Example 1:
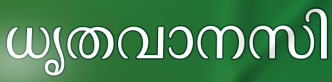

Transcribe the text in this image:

ധൃതവാനസി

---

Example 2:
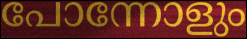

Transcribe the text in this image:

പോന്നോളും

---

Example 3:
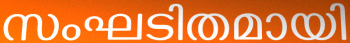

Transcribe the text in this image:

സംഘടിതമായി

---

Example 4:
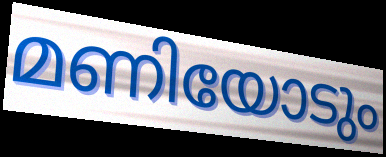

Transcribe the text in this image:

മണിയോടും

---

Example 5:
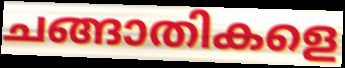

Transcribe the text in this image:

ചങ്ങാതികളെ